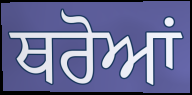
ਥਰੋਆਂ